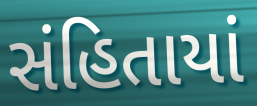
સંહિતાયાં